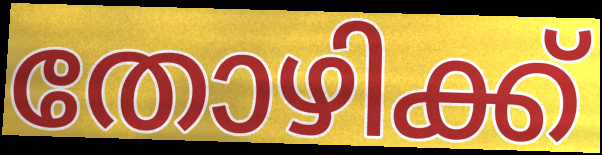
തോഴിക്ക്